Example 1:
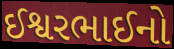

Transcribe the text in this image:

ઈશ્વરભાઈનો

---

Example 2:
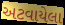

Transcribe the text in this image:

અટવાયેલા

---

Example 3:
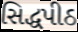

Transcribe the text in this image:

સિદ્ધપીઠ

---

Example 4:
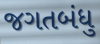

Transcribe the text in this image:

જગતબંધુ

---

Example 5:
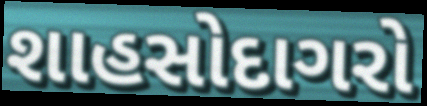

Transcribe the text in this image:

શાહસોદાગરો